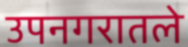
उपनगरातले